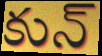
కున్